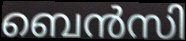
ബെൻസി